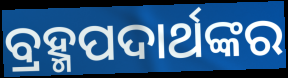
ବ୍ରହ୍ମପଦାର୍ଥଙ୍କର